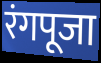
रंगपूजा